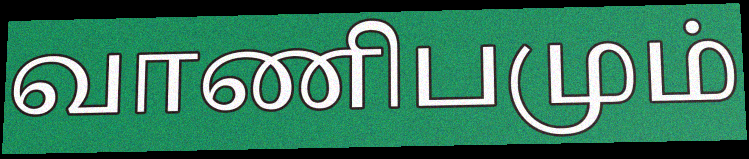
வாணிபமும்